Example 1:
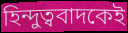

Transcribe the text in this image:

হিন্দুত্ববাদকেই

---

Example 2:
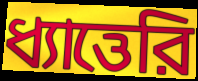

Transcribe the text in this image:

ধ্যাত্তেরি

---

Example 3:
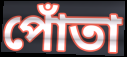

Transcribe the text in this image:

পোঁতা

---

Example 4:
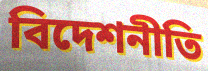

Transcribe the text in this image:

বিদেশনীতি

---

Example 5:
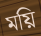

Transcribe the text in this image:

ময়ি